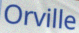
Orville